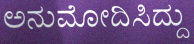
ಅನುಮೋದಿಸಿದ್ದು